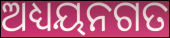
ଅଧ୍ୟୟନଗତ